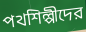
পথশিল্পীদের